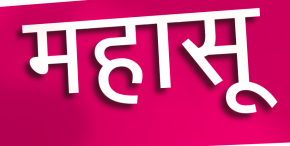
महासू